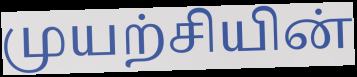
முயற்சியின்